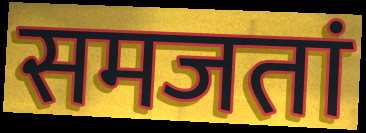
समजतां